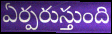
ఏర్పరుస్తుంది